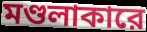
মণ্ডলাকারে